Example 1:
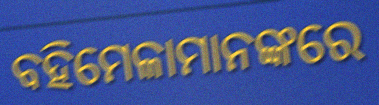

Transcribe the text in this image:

ବହିମେଳାମାନଙ୍କରେ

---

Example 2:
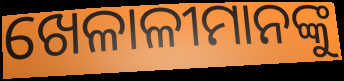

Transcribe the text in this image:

ଖେଳାଳୀମାନଙ୍କୁ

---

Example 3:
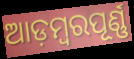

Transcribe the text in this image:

ଆଡ଼ମ୍ବରପୂର୍ଣ୍ଣ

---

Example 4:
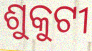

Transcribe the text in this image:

ଶୁକୁଟୀ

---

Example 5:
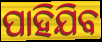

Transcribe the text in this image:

ପାହିଯିବ